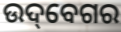
ଉଦ୍‌ବେଗର